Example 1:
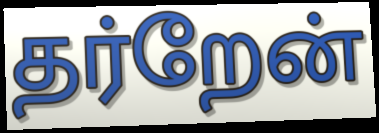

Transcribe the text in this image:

தர்றேன்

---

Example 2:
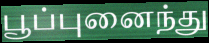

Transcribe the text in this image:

பூப்புனைந்து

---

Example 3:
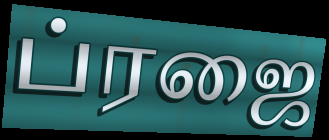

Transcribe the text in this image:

ப்ரஜை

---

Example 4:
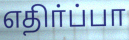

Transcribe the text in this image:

எதிர்ப்பா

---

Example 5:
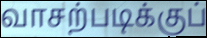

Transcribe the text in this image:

வாசற்படிக்குப்